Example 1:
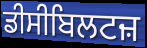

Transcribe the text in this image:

ਡੀਸੀਬਿਲਟਜ਼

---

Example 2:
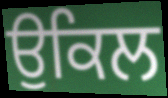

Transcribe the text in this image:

ਉਕਿਲ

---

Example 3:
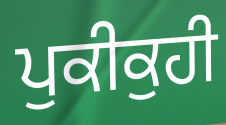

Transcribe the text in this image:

ਪੁਕੀਕੁਹੀ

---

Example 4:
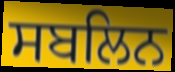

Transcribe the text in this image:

ਸਬਲਿਨ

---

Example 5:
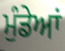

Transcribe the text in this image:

ਮੁੰਡੇਆਂ